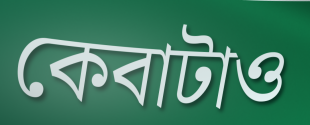
কেবাটাও